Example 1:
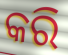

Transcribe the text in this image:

କରି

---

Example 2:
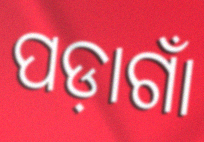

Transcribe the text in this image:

ପଡ଼ାଗାଁ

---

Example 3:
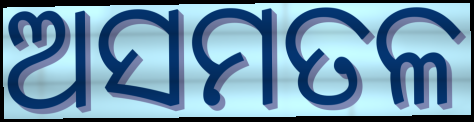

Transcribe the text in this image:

ଅସମତଳ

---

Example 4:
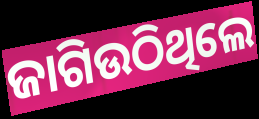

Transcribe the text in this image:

ଜାଗିଉଠିଥିଲେ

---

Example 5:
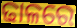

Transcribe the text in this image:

ଢାଳରେ